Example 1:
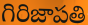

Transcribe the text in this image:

గిరిజాపతి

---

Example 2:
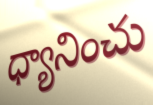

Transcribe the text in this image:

ధ్యానించు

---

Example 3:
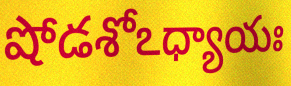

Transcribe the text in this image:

షోడశోఽధ్యాయః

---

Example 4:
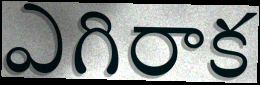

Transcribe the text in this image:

ఎగిరాక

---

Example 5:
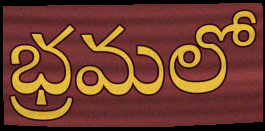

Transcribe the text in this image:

భ్రమలో